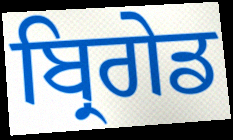
ਬ੍ਰਿਗੇਡ